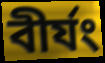
বীর্যং